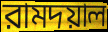
রামদয়াল